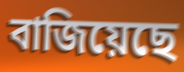
বাজিয়েছে